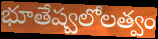
భూతేష్వలోలత్వం